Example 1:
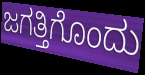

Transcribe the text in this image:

ಜಗತ್ತಿಗೊಂದು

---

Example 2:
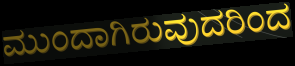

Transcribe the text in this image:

ಮುಂದಾಗಿರುವುದರಿಂದ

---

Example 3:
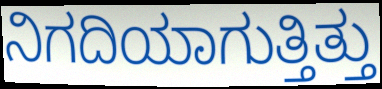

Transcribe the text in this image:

ನಿಗದಿಯಾಗುತ್ತಿತ್ತು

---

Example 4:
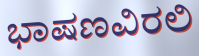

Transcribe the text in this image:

ಭಾಷಣವಿರಲಿ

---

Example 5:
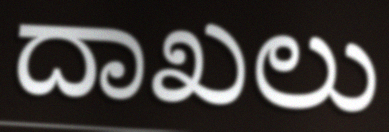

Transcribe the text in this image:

ದಾಖಲು